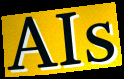
AIs